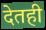
देतही